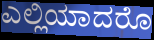
ಎಲ್ಲಿಯಾದರೊ